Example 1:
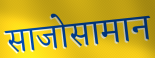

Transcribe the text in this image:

साजोसामान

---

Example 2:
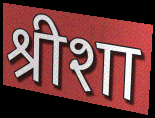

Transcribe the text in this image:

श्रीशा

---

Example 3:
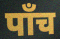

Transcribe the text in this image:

पॉंच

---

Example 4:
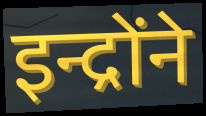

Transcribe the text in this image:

इन्द्रोंने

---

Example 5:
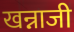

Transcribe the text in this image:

खन्नाजी